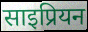
साइप्रियन